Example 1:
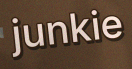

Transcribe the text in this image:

junkie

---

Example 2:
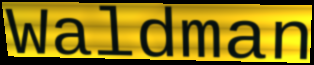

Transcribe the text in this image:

Waldman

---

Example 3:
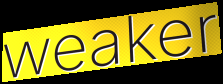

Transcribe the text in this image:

weaker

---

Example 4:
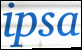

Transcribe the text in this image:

ipsa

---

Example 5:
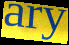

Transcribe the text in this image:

ary